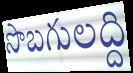
సొబగులద్ది